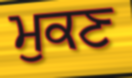
ਮੁਕਣ